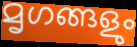
മൃഗങ്ങളും